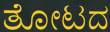
ತೋಟದ